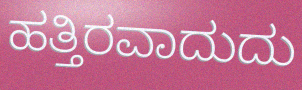
ಹತ್ತಿರವಾದುದು